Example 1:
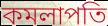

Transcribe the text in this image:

কমলাপতি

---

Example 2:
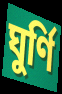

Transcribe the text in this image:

ঘুর্ণি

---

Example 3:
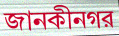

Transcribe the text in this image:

জানকীনগর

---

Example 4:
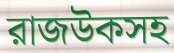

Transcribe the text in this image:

রাজউকসহ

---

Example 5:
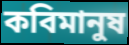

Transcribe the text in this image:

কবিমানুষ